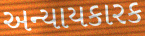
અન્યાયકારક